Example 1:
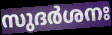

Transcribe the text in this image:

സുദർശനഃ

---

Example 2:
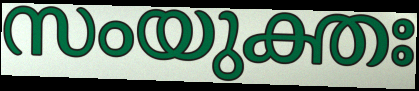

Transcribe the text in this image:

സംയുക്തഃ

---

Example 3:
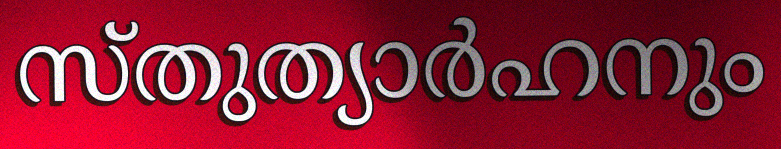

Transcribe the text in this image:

സ്തുത്യാർഹനും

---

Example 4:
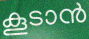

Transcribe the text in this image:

കൂടാൻ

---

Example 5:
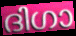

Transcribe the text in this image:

ദിഗാ